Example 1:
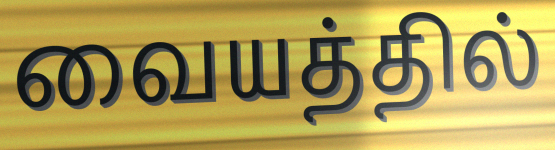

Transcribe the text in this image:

வையத்தில்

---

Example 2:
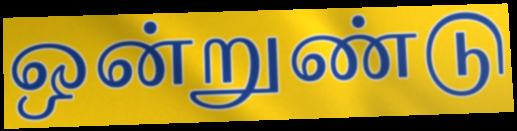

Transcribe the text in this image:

ஒன்றுண்டு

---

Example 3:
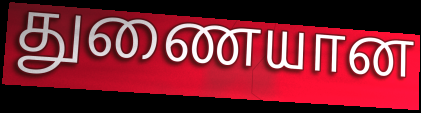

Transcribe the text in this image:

துணையான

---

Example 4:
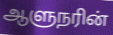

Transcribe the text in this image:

ஆளுநரின்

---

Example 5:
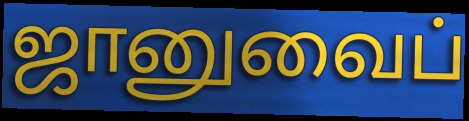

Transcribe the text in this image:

ஜானுவைப்